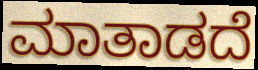
ಮಾತಾಡದೆ